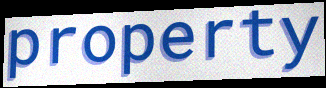
property